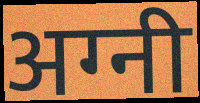
अग्नी